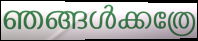
ഞങ്ങൾക്കത്രേ